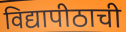
विद्यापीठाची